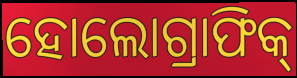
ହୋଲୋଗ୍ରାଫିକ୍